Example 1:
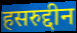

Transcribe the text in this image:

हसरुद्दीन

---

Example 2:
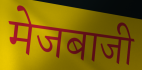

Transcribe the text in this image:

मेजबाजी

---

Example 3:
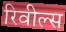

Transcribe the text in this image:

रिवील्स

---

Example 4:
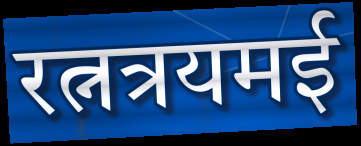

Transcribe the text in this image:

रत्नत्रयमई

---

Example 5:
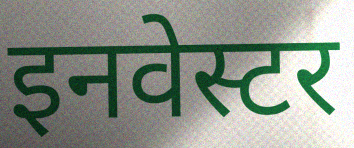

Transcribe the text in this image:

इनवेस्टर